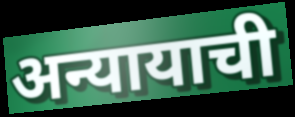
अन्यायाची